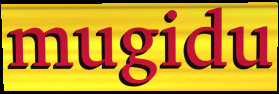
mugidu